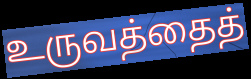
உருவத்தைத்